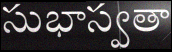
సుభాస్వతా